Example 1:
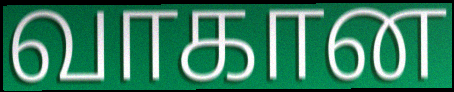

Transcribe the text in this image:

வாகான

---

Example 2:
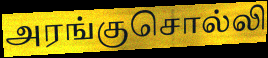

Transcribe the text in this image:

அரங்குசொல்லி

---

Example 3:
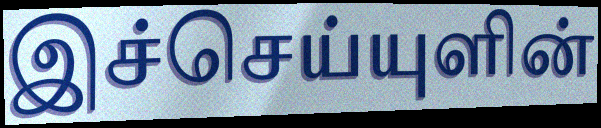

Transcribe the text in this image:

இச்செய்யுளின்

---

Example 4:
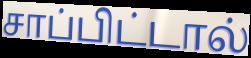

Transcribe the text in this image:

சாப்பிட்டால்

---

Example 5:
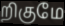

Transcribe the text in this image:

றிகுமே